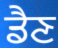
ਡੈਣ